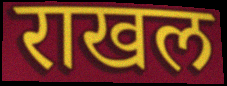
राखल